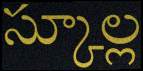
స్కూల్ల